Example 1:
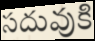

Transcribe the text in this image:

సదువుకి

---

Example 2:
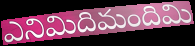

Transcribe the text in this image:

ఎనిమిదిమందిమి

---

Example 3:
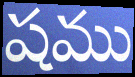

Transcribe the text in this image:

షము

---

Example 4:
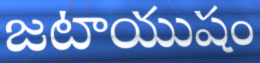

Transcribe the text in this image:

జటాయుషం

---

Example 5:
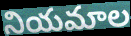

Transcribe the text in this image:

నియమాల